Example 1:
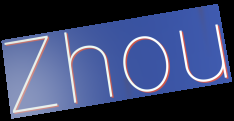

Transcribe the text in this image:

Zhou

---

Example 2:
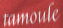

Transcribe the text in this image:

tamoule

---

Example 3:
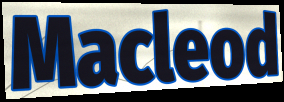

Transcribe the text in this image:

Macleod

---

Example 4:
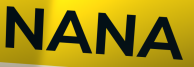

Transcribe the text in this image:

NANA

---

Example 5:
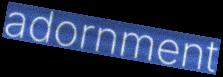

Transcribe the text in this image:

adornment